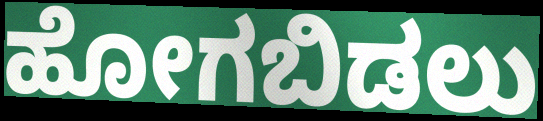
ಹೋಗಬಿಡಲು